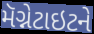
મૅગ્નેટાઇટને